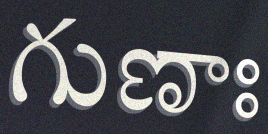
గుణాః